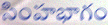
సింహభాగం